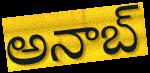
అనాబ్